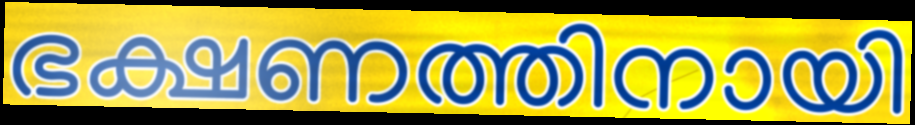
ഭക്ഷണത്തിനായി